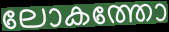
ലോകത്തോ